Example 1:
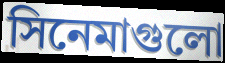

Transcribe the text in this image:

সিনেমাগুলো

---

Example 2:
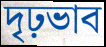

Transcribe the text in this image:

দৃঢ়ভাব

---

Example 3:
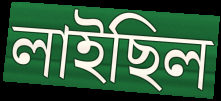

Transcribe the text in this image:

লাইছিল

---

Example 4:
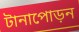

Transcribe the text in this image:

টানাপোড়ন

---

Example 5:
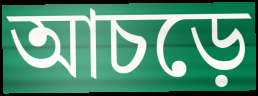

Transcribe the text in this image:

আচড়ে